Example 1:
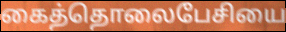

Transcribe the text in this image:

கைத்தொலைபேசியை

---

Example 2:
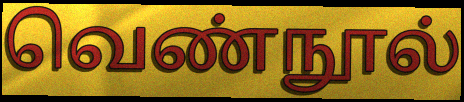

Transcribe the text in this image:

வெண்நூல்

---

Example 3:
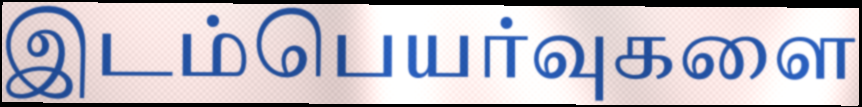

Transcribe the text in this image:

இடம்பெயர்வுகளை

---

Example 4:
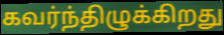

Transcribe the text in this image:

கவர்ந்திழுக்கிறது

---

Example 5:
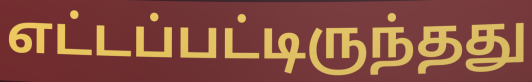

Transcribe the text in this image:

எட்டப்பட்டிருந்தது